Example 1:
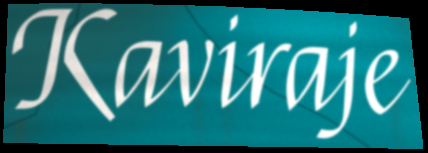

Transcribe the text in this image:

Kaviraje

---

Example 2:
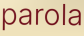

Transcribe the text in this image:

parola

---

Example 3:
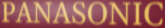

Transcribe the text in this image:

PANASONIC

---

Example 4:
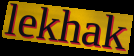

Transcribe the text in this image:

lekhak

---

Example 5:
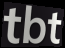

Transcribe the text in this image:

tbt